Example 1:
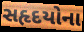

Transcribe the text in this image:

સહૃદયોના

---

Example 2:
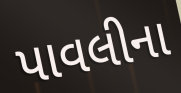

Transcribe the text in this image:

પાવલીના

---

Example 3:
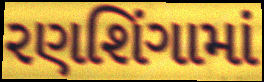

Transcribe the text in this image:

રણશિંગામાં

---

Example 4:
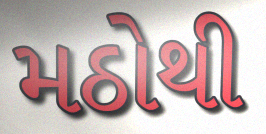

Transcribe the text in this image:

મઠોથી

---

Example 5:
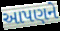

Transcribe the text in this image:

આપણને